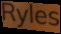
Ryles